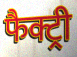
फैक्ट्री